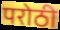
परोठी